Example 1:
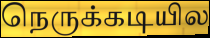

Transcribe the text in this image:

நெருக்கடியில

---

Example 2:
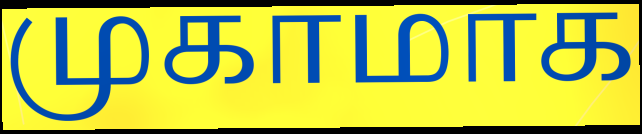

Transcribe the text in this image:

முகாமாக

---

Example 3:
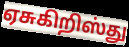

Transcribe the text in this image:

ஏசுகிறிஸ்து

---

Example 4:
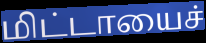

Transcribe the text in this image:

மிட்டாயைச்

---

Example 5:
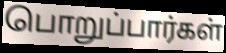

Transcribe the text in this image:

பொறுப்பார்கள்